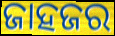
ଜାହଜର